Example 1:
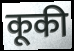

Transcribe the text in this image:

कूकी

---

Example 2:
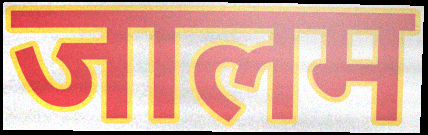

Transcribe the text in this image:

जालम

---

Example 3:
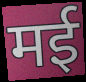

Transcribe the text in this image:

मई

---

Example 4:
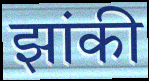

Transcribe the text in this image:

झांकी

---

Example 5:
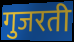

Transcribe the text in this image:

गुजरती